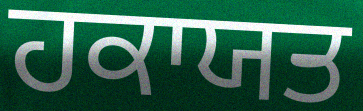
ਹਕਾਯਤ